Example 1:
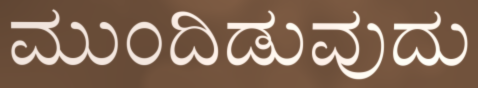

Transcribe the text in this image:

ಮುಂದಿಡುವುದು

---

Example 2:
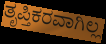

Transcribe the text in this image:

ತೃಪ್ತಿಕರವಾಗಿಲ್ಲ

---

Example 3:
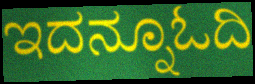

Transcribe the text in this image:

ಇದನ್ನೂಓದಿ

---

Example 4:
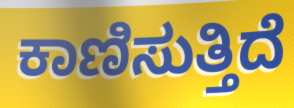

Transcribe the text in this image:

ಕಾಣಿಸುತ್ತಿದೆ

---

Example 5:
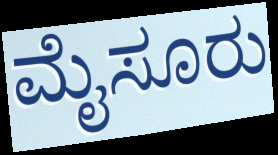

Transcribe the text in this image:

ಮೈಸೂರು